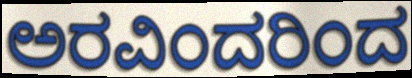
ಅರವಿಂದರಿಂದ